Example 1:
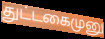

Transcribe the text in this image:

துட்டகைமுனு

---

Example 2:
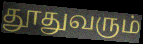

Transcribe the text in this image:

தூதுவரும்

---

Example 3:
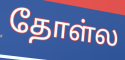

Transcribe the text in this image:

தோள்ல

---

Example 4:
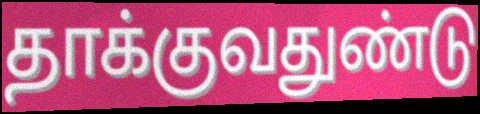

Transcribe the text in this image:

தாக்குவதுண்டு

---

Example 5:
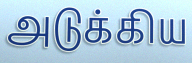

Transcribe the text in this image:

அடுக்கிய